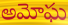
అమోఘ